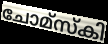
ചോമ്സ്കി